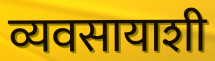
व्यवसायाशी